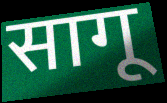
सागू